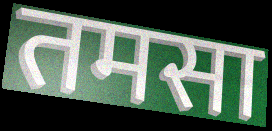
तमसा